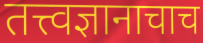
तत्त्वज्ञानाचाच